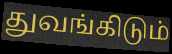
துவங்கிடும்